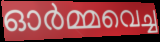
ഓർമ്മവെച്ച